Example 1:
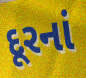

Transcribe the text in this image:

દૂરનાં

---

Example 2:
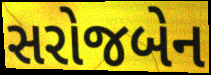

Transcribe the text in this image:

સરોજબેન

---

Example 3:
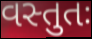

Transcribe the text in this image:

વસ્તુતઃ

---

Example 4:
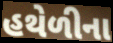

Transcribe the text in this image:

હથેળીના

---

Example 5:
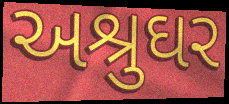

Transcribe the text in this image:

અશ્રુઘર